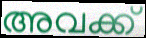
അവക്ക്